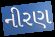
નીરણ